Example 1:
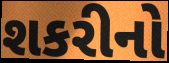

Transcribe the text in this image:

શકરીનો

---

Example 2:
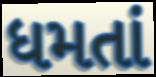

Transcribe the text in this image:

ધમતાં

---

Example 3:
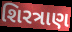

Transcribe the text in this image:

શિરત્રાણ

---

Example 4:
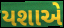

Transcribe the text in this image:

યશાએ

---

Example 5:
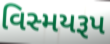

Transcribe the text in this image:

વિસ્મયરૂપ